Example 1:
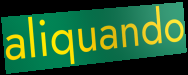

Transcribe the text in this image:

aliquando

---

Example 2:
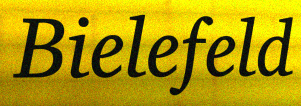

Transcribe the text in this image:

Bielefeld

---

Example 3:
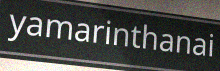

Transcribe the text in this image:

yamarinthanai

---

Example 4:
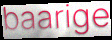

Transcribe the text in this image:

baarige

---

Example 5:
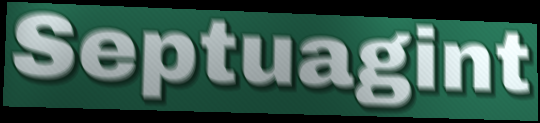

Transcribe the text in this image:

Septuagint